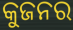
କୁଜନର